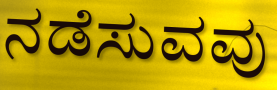
ನಡೆಸುವವು